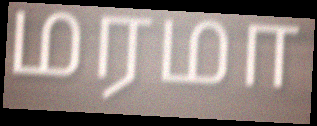
மரமா